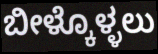
ಬೀಳ್ಕೊಳ್ಳಲು